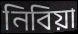
নিবিয়া